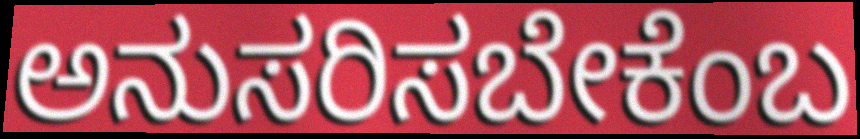
ಅನುಸರಿಸಬೇಕೆಂಬ